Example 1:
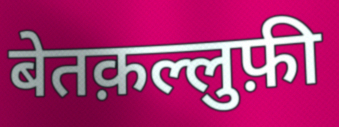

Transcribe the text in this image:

बेतक़ल्लुफ़ी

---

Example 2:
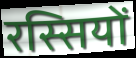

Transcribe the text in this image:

रस्सियों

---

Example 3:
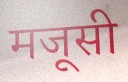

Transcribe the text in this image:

मजूसी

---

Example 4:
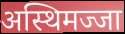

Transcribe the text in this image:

अस्थिमज्जा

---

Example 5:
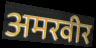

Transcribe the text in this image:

अमरवीर